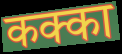
कक्का